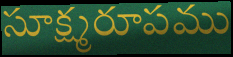
సూక్ష్మరూపము